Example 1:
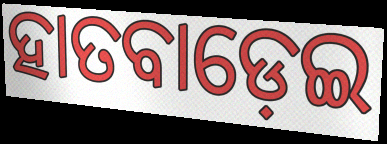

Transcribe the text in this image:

ହାତବାଡ଼େଇ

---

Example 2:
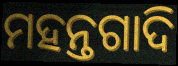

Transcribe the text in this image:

ମହନ୍ତଗାଦି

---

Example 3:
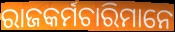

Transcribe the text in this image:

ରାଜକର୍ମଚାରିମାନେ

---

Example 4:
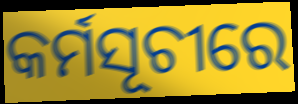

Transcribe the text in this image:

କର୍ମସୂଚୀରେ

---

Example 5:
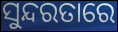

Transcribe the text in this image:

ସୁନ୍ଦରତାରେ